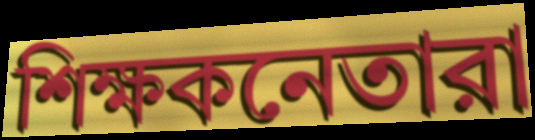
শিক্ষকনেতারা